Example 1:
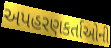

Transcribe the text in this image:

અપહરણકર્તાઓની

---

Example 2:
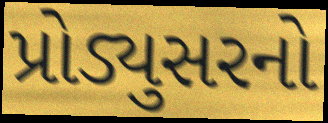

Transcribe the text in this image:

પ્રોડ્યુસરનો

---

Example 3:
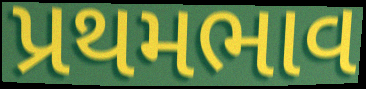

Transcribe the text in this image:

પ્રથમભાવ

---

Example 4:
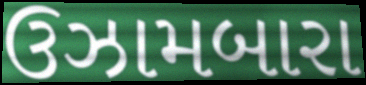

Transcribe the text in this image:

ઉઝામબારા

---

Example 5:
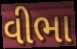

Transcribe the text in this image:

વીભા